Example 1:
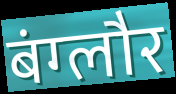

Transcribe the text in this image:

बंग्लौर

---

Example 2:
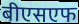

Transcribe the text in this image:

बीएसएफ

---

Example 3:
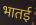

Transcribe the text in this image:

भातई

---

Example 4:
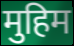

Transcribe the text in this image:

मुहिम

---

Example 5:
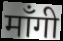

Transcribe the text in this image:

माँगी